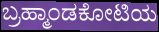
ಬ್ರಹ್ಮಾಂಡಕೋಟಿಯ